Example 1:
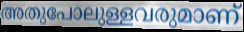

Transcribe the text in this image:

അതുപോലുള്ളവരുമാണ്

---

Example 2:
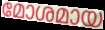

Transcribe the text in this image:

മോശമായ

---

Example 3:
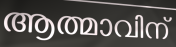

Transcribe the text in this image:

ആത്മാവിന്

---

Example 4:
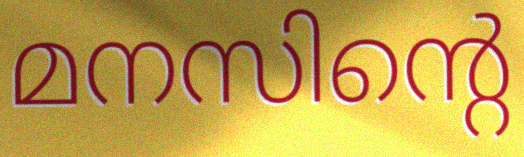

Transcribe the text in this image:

മനസിന്റെ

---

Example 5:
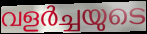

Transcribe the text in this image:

വളർച്ചയുടെ